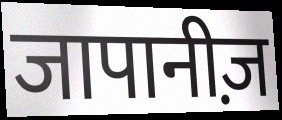
जापानीज़